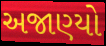
અજાણ્યો